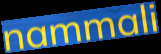
nammali